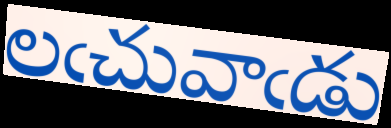
లఁచువాఁడు